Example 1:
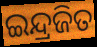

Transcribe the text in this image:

ଇନ୍ଦ୍ରଜିତ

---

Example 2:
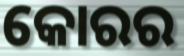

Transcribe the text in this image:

କୋରର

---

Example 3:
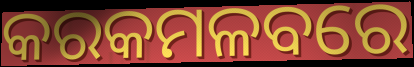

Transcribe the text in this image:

କରକମଳବରେ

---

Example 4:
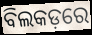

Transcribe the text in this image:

ବିଲକଡ଼ରେ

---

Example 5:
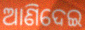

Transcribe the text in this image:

ଆଣିଦେଇ